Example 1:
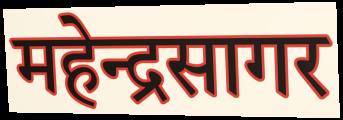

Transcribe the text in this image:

महेन्द्रसागर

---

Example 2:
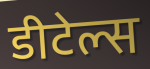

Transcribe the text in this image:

डीटेल्स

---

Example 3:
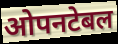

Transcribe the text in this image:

ओपनटेबल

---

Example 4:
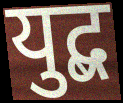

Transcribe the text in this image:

युद्ब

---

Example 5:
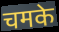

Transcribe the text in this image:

चमके